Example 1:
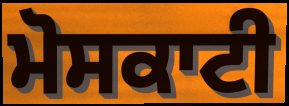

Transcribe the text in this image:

ਮੋਸਕਾਟੀ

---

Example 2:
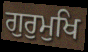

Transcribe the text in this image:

ਗੁਰੁਮੁਖਿ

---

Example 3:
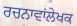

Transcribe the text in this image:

ਰਚਨਾਵਾਂਲੇਖਕ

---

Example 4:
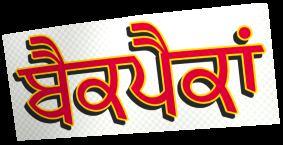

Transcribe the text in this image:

ਬੈਕਪੈਕਾਂ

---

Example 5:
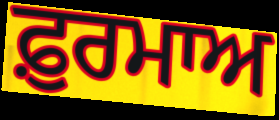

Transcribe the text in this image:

ਫ਼ੁਰਮਾਅ